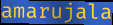
amarujala